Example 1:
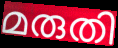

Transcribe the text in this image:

മരുതി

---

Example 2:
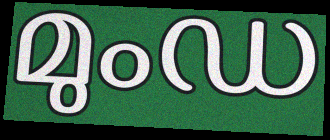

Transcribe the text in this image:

മുംഡ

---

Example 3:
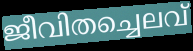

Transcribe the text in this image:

ജീവിതച്ചെലവ്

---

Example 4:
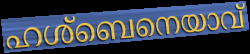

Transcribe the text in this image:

ഹശ്ബെനെയാവ്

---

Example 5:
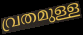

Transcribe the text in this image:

വ്രതമുള്ള